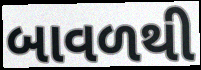
બાવળથી